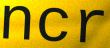
ncr